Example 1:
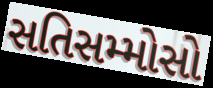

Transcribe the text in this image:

સતિસમ્મોસો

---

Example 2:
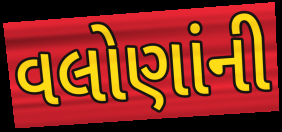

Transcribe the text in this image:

વલોણાંની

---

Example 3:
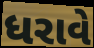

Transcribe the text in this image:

ધરાવે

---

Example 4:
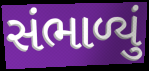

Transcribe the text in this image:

સંભાળ્યું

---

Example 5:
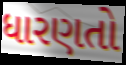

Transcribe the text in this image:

ધારણતો